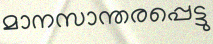
മാനസാന്തരപ്പെട്ടു